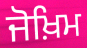
ਜੋਖ਼ਿਮ